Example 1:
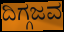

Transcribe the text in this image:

ದಿಗ್ಗಜವ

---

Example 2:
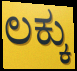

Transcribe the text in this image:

ಲಕ್ಕು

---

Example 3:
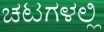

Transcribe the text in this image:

ಚಟಗಳಲ್ಲಿ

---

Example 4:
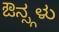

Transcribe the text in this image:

ಔನ್ಸ್ಗಳು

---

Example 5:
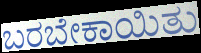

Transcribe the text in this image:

ಬರಬೇಕಾಯಿತು